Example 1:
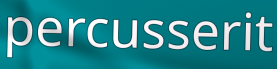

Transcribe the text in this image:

percusserit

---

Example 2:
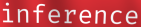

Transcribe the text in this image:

inference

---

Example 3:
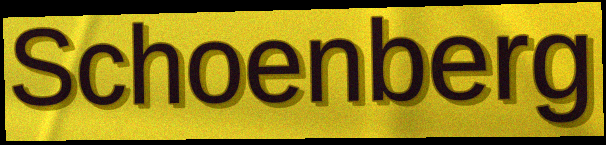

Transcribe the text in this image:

Schoenberg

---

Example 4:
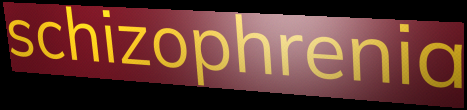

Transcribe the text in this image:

schizophrenia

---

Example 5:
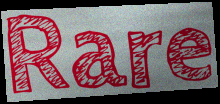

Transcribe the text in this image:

Rare